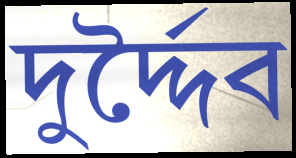
দুর্দ্দৈব